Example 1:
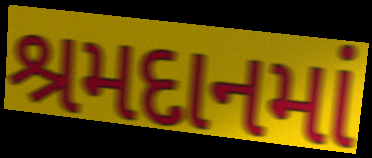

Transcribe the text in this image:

શ્રમદાનમાં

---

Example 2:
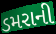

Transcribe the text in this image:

ડમરાની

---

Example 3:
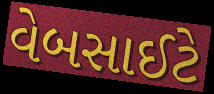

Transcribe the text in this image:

વેબસાઈટે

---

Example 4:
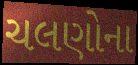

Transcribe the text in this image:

ચલણોના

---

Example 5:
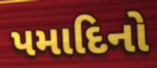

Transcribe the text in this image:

પમાદિનો